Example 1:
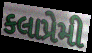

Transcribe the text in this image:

કલાપ્રેમી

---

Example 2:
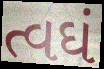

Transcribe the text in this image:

ત્વઘં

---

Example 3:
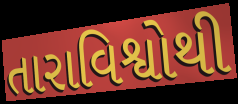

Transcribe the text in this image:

તારાવિશ્વોથી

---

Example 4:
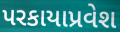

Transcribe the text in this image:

પરકાયાપ્રવેશ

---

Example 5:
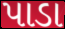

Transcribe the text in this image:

પાડા